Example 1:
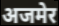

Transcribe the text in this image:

अजमेर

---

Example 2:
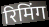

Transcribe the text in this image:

रिमिंग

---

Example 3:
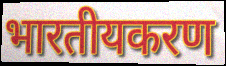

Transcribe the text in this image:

भारतीयकरण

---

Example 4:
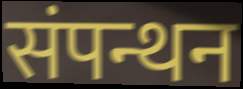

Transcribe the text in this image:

संपन्थन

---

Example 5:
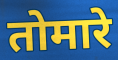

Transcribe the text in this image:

तोमारे